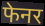
फेनर